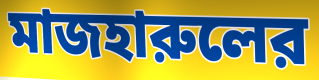
মাজহারুলের